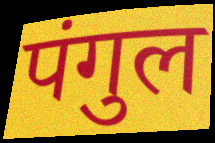
पंगुल